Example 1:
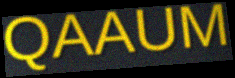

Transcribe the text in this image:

QAAUM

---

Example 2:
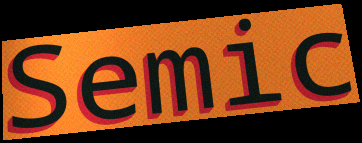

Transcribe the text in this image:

Semic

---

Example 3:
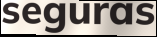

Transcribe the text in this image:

seguras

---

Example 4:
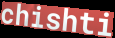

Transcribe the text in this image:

chishti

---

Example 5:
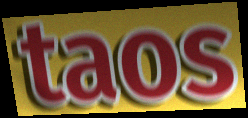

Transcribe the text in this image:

taos